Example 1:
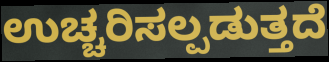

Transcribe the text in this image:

ಉಚ್ಚರಿಸಲ್ಪಡುತ್ತದೆ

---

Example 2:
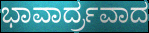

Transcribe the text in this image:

ಭಾವಾರ್ದ್ರವಾದ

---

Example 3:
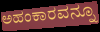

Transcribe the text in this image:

ಅಹಂಕಾರವನ್ನೂ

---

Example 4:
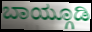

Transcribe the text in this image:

ಬಾಯ್ಗೂಡಿ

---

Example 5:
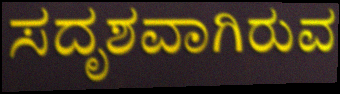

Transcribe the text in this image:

ಸದೃಶವಾಗಿರುವ